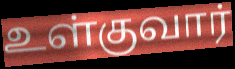
உள்குவார்